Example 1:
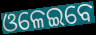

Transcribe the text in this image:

ଓଳେଇବେ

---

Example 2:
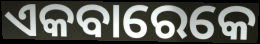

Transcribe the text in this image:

ଏକବାରେକେ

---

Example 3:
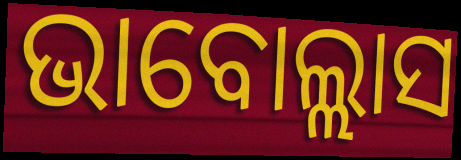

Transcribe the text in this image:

ଭାବୋଲ୍ଲାସ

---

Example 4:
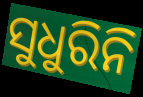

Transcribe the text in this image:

ସୁଧୁରିନି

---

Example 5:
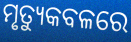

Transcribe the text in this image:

ମୃତ୍ୟୁକବଳରେ